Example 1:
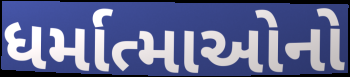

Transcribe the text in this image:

ધર્માત્માઓનો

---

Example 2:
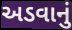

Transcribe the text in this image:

અડવાનું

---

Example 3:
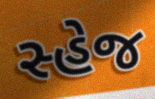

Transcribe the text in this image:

સ્હેજ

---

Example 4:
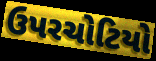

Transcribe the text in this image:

ઉપરચોટિયો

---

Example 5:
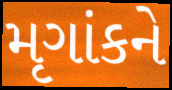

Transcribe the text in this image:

મૃગાંકને